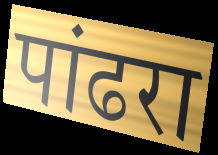
पांढरा